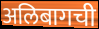
अलिबागची